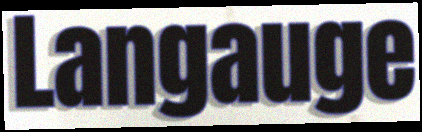
Langauge